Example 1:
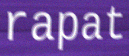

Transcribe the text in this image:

rapat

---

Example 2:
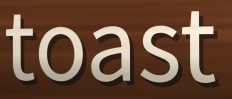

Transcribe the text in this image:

toast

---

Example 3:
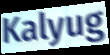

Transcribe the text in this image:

Kalyug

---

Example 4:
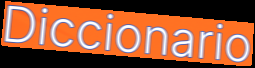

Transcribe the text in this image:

Diccionario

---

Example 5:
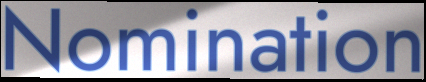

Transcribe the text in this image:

Nomination